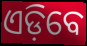
ଏଡ଼ିବେ